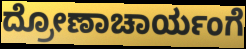
ದ್ರೋಣಾಚಾರ್ಯಂಗೆ